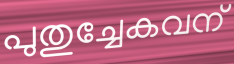
പുതുച്ചേകവന്